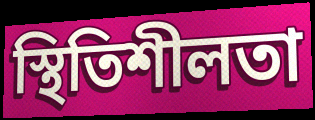
স্থিতিশীলতা